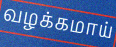
வழக்கமாய்